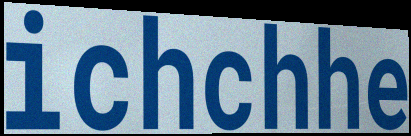
ichchhe